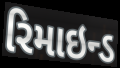
રિમાઇન્ડ